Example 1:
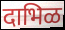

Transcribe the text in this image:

दाभिळ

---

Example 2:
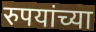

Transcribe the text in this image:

रुपयांच्या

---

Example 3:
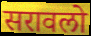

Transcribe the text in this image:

सरावलो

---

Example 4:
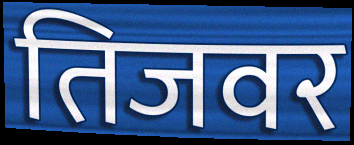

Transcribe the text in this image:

तिजवर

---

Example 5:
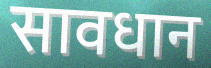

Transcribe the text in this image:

सावधान